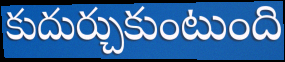
కుదుర్చుకుంటుంది